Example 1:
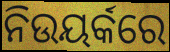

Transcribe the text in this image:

ନିଉୟର୍କରେ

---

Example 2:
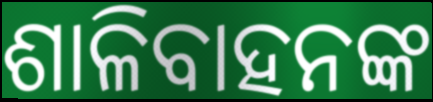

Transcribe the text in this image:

ଶାଳିବାହନଙ୍କ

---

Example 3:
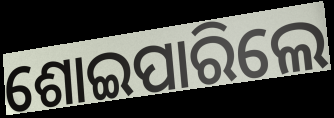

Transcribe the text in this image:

ଶୋଇପାରିଲେ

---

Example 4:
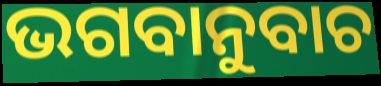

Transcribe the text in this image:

ଭଗବାନୁବାଚ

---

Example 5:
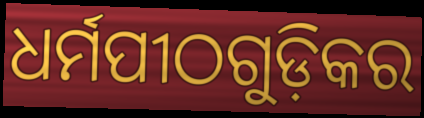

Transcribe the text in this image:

ଧର୍ମପୀଠଗୁଡ଼ିକର